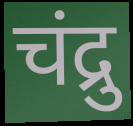
चंद्रु